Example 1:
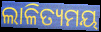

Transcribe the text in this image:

ଲାଳିତ୍ୟମୟ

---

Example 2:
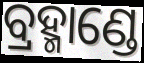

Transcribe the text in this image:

ବ୍ରହ୍ମାଣ୍ଡେ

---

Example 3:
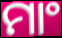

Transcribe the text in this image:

ମାଂ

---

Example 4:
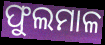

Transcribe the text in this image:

ଫୁଲମାଳ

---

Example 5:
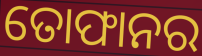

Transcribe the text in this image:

ତୋଫାନର